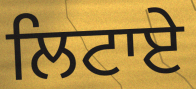
ਲਿਟਾਏ